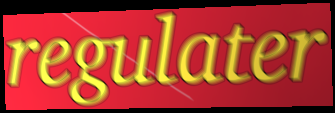
regulater